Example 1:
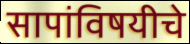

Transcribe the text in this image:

सापांविषयीचे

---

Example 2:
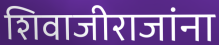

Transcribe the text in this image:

शिवाजीराजांना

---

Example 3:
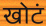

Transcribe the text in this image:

खोटं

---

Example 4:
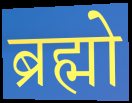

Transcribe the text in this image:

ब्रह्मो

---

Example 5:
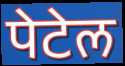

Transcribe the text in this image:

पेटेल